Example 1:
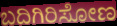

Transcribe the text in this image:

ಬದಿಗಿರಿಸೋಣ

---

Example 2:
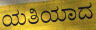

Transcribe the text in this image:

ಯತಿಯಾದ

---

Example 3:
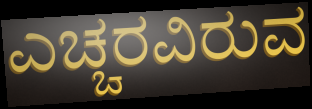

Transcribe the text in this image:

ಎಚ್ಚರವಿರುವ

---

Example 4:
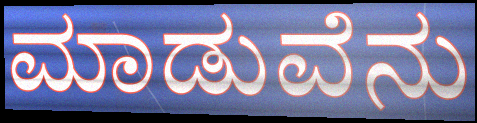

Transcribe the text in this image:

ಮಾಡುವೆನು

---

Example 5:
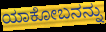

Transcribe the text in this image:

ಯಾಕೋಬನನ್ನು